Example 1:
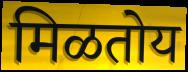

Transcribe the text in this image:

मिळतोय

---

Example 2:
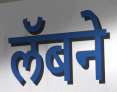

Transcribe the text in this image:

लॅबने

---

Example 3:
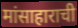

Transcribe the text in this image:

मांसाहाराची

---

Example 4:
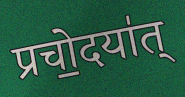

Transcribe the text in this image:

प्रचो॒दया॑त्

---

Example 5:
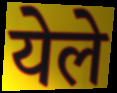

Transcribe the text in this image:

येले